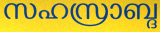
സഹസ്രാബ്ദ